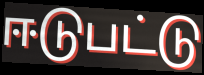
ஈடுபட்டு